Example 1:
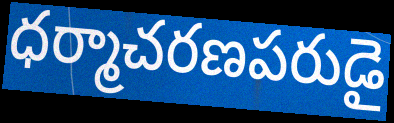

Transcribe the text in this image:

ధర్మాచరణపరుడై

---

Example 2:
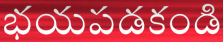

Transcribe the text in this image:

భయపడకండి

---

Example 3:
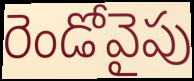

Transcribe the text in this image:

రెండోవైపు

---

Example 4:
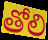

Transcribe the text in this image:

తోలి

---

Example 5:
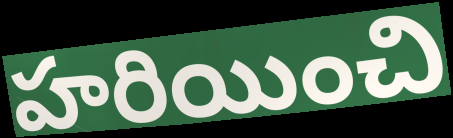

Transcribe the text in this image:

హరియించి